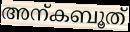
അന്കബൂത്